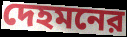
দেহমনের